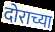
दोराच्या